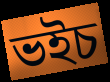
ভইচ